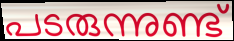
പടരുന്നുണ്ട്